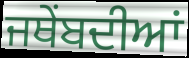
ਜਥੇਂਬਦੀਆਂ